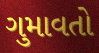
ગુમાવતો